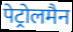
पेट्रोलमैन